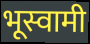
भूस्‍वामी